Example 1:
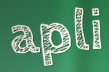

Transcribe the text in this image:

apli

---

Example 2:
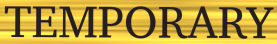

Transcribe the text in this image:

TEMPORARY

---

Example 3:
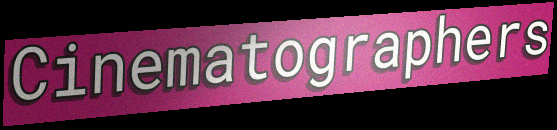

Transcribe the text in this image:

Cinematographers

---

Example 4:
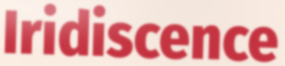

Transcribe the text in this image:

Iridiscence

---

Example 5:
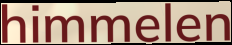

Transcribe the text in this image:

himmelen